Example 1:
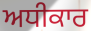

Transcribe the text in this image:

ਅਧੀਕਾਰ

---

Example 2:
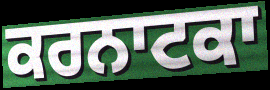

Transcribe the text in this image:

ਕਰਨਾਟਕਾ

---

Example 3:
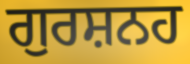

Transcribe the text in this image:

ਗੁਰਸ਼ਨਹ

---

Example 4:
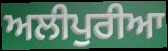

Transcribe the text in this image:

ਅਲੀਪੁਰੀਆ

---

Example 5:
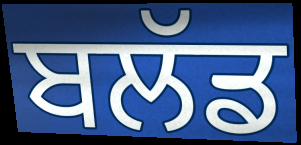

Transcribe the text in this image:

ਬਲੱਡ